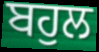
ਬਹੁਲ